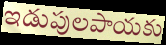
ఇడుపులపాయకు